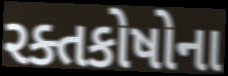
રક્તકોષોના